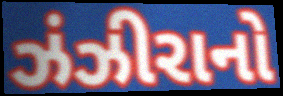
ઝંઝીરાનો